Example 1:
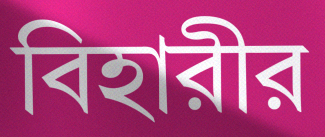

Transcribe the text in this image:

বিহারীর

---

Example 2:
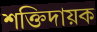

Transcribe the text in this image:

শক্তিদায়ক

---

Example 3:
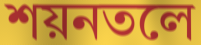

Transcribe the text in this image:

শয়নতলে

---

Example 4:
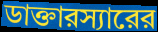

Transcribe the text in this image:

ডাক্তারস্যারের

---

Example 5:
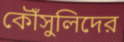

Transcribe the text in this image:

কৌঁসুলিদের